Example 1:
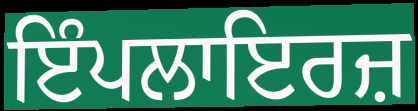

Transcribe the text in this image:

ਇੰਪਲਾਇਰਜ਼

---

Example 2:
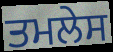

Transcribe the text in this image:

ਤਮਲੇਸ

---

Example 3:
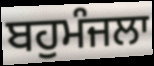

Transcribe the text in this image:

ਬਹੁਮੰਜਲਾ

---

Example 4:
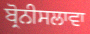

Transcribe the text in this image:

ਬ੍ਰੋਨੀਸਲਾਵਾ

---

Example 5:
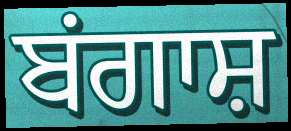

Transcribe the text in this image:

ਬਂਗਾਸ਼